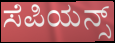
ಸೆಪಿಯನ್ಸ್